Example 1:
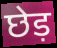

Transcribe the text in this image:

छेड़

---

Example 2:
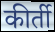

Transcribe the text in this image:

कीर्ती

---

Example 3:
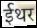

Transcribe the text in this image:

ईथर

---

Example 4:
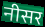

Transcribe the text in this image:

नीसर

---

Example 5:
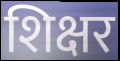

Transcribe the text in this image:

शिक्षर